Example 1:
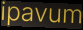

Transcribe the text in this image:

ipavum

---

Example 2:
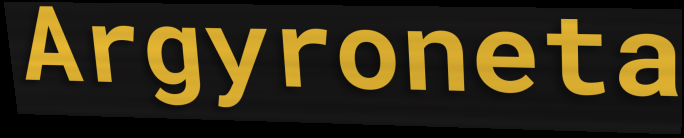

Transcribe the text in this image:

Argyroneta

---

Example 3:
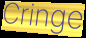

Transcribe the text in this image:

Cringe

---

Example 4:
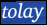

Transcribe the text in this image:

tolay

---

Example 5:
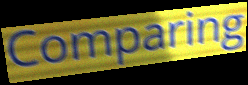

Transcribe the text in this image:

Comparing